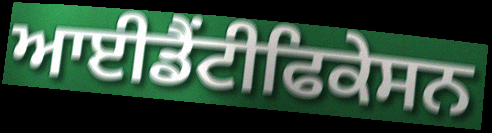
ਆਈਡੈਂਟੀਫਿਕੇਸਨ